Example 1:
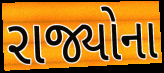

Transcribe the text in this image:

રાજ્યોના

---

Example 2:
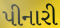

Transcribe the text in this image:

પીનારી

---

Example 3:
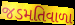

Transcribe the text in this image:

જડમતિવાળા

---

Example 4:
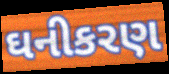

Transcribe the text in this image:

ઘનીકરણ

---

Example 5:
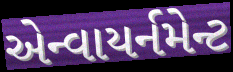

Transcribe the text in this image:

એન્વાયર્નમેન્ટ